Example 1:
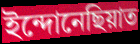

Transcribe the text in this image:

ইন্দোনেছিয়াত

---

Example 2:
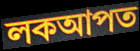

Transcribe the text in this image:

লকআপত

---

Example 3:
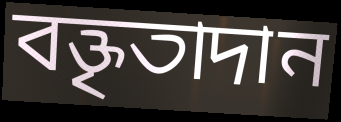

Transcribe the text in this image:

বক্তৃতাদান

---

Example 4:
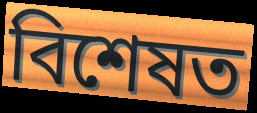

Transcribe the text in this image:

বিশেষত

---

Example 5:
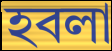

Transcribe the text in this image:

হবলা